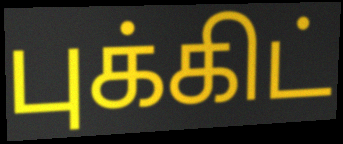
புக்கிட்